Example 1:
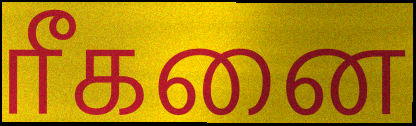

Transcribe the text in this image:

ரீகனை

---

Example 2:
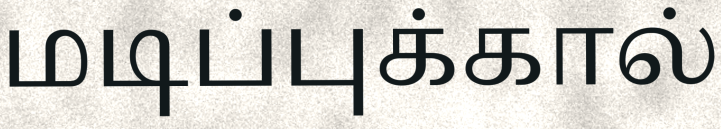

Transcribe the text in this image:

மடிப்புக்கால்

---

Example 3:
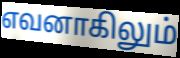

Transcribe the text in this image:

எவனாகிலும்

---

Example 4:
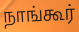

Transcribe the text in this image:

நாங்கூர்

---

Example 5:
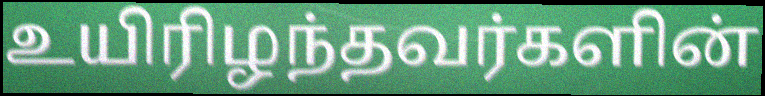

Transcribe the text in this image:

உயிரிழந்தவர்களின்